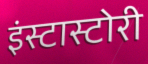
इंस्टास्टोरी